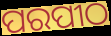
ପରପୀଠ